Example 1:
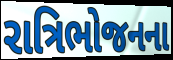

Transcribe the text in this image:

રાત્રિભોજનના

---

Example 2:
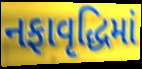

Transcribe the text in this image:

નફાવૃદ્ધિમાં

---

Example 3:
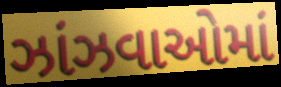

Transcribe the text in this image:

ઝાંઝવાઓમાં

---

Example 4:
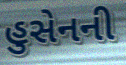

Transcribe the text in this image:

હુસેનની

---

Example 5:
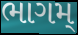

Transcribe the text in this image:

ભાગમ્